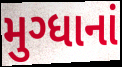
મુગ્ધાનાં